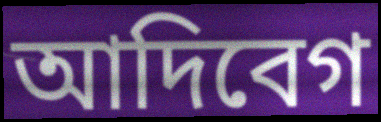
আদিবেগ